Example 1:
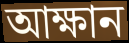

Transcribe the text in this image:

আক্ষান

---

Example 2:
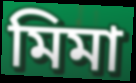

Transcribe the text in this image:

মিমা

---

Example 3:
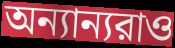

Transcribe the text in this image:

অন্যান্যরাও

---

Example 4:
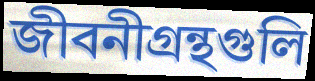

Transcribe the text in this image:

জীবনীগ্রন্থগুলি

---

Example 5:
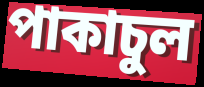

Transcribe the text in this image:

পাকাচুল